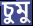
চুমু